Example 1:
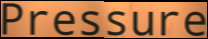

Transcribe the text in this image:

Pressure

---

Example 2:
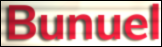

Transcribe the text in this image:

Bunuel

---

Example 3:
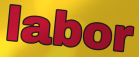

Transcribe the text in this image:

labor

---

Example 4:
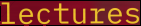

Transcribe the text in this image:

lectures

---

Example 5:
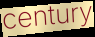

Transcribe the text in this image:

century